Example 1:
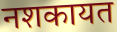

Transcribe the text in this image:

नशकायत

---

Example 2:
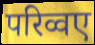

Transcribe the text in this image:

परिव्वए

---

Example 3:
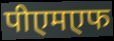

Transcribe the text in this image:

पीएमएफ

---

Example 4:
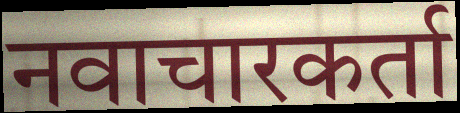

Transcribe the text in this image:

नवाचारकर्ता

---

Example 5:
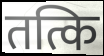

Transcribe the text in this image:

तत्कि